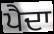
ਪੈਦਾ